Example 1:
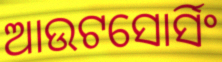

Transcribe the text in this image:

ଆଉଟସୋର୍ସିଂ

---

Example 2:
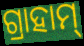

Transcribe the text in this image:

ଗ୍ରାହାମ୍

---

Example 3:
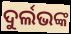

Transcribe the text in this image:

ଦୁର୍ଲଭଙ୍କ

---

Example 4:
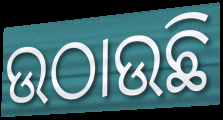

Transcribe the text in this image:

ଉଠାଉଛି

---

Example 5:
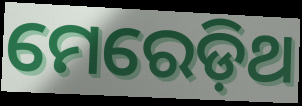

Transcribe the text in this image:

ମେରେଡ଼ିଥ